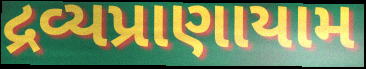
દ્રવ્યપ્રાણાયામ